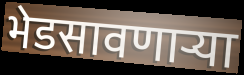
भेडसावणार्‍या